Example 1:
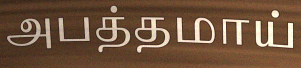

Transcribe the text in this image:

அபத்தமாய்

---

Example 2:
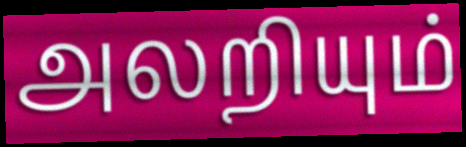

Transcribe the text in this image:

அலறியும்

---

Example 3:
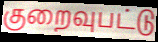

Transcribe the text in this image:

குறைவுபட்டு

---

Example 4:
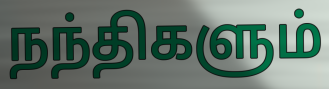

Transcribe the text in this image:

நந்திகளும்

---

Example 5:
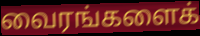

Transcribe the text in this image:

வைரங்களைக்